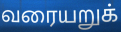
வரையறுக்